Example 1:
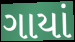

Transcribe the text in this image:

ગાયાં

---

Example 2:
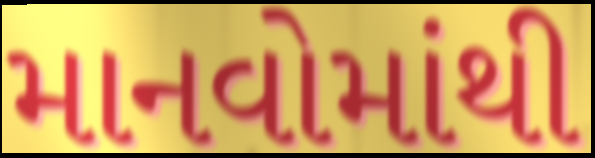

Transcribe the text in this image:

માનવોમાંથી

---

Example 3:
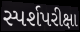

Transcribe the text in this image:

સ્પર્શપરીક્ષા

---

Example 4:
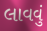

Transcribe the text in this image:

લાવવું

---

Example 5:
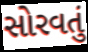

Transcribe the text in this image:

સોરવતું